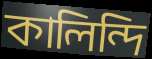
কালিন্দি